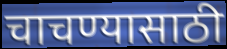
चाचण्यासाठी